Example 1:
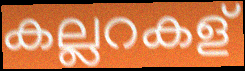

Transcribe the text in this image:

കല്ലറകള്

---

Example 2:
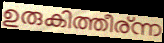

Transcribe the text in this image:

ഉരുകിത്തീര്ന്ന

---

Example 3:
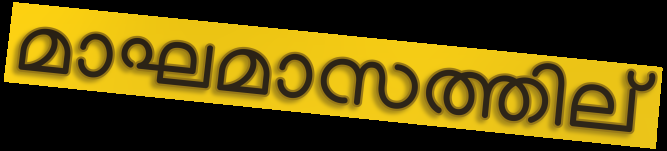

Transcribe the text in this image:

മാഘമാസത്തില്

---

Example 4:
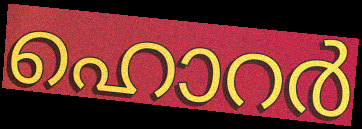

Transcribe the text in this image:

ഹൊറർ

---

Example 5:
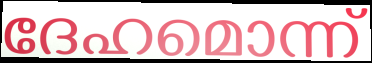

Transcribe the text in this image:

ദേഹമൊന്ന്